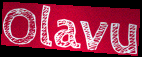
Olavu